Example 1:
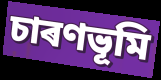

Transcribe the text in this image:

চাৰণভূমি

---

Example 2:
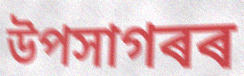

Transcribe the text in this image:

উপসাগৰৰ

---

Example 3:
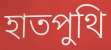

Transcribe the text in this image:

হাতপুথি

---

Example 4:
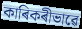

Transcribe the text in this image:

কাৰিকৰীভাৱে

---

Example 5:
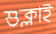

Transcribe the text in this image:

শুক্লাই